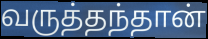
வருத்தந்தான்